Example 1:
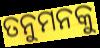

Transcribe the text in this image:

ତନୁମନକୁ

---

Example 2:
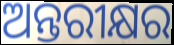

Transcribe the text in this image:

ଅନ୍ତରୀକ୍ଷର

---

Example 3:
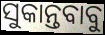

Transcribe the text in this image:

ସୁକାନ୍ତବାବୁ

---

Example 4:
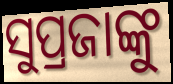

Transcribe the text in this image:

ସୁପ୍ରଜାଙ୍କୁ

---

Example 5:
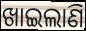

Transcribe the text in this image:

ଖାଇଲାଣି